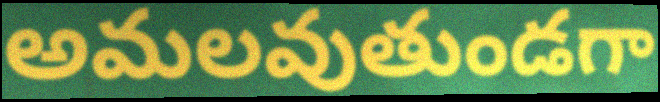
అమలవుతుండగా